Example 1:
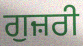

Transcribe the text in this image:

ਗੁਜ਼ਰੀ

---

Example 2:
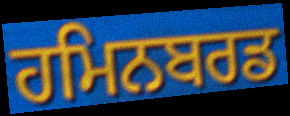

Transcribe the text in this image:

ਹਮਿਨਬਰਡ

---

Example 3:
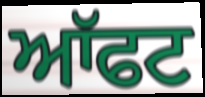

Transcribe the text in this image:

ਆੱਫਟ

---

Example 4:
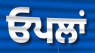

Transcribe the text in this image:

ਓਪਲਾਂ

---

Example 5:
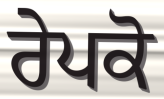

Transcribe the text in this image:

ਰੇਪਕੋ